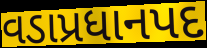
વડાપ્રધાનપદ